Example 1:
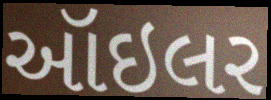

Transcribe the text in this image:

ઑઇલર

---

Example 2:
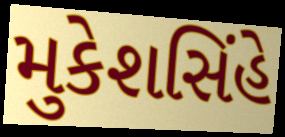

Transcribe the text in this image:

મુકેશસિંહે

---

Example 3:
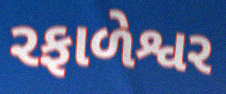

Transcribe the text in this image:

રફાળેશ્વર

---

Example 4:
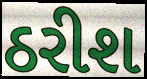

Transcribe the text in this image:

ઠરીશ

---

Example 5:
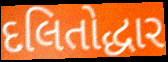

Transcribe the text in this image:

દલિતોદ્ધાર